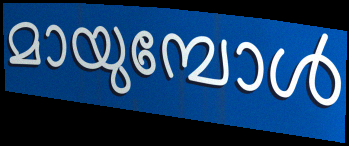
മായുമ്പോൾ